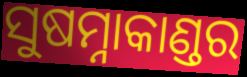
ସୁଷମ୍ନାକାଣ୍ଡର